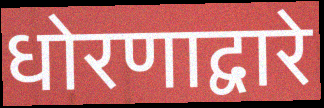
धोरणाद्वारे